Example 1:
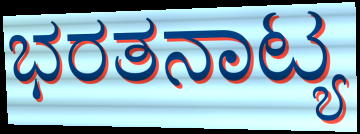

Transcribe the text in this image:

ಭರತನಾಟ್ಯ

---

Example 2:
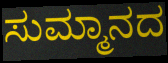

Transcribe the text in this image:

ಸುಮ್ಮಾನದ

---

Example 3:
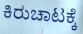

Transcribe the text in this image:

ಕಿರುಚಾಟಕ್ಕೆ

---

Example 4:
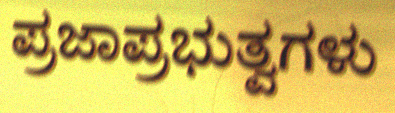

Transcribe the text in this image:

ಪ್ರಜಾಪ್ರಭುತ್ವಗಳು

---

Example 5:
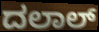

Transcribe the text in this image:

ದಲಾಲ್